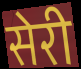
सेरी